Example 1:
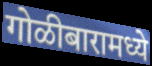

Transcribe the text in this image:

गोळीबारामध्ये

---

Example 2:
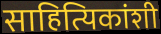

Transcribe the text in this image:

साहित्यिकांशी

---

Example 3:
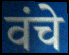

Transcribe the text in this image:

वंचे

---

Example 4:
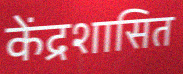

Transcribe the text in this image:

केंद्रशासित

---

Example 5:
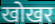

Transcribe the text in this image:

खोखर